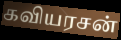
கவியரசன்